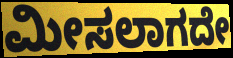
ಮೀಸಲಾಗದೇ